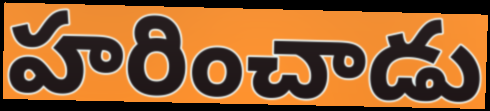
హరించాడు